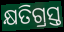
କ୍ଷତିଗ୍ରସ୍ତ